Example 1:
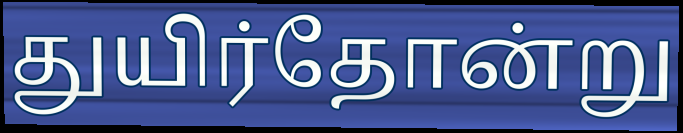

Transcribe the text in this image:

துயிர்தோன்று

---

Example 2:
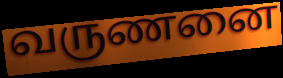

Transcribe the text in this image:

வருணனை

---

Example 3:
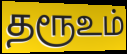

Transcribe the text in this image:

தரூஉம்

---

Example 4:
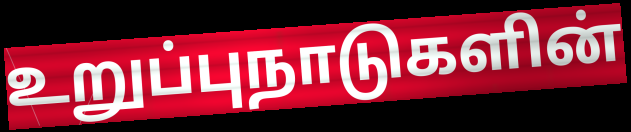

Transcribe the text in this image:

உறுப்புநாடுகளின்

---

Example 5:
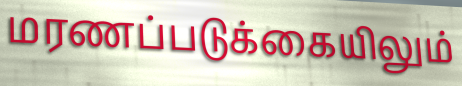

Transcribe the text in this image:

மரணப்படுக்கையிலும்